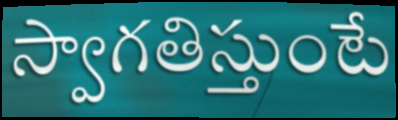
స్వాగతిస్తుంటే